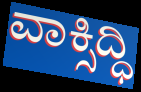
ವಾಕ್ಸಿದ್ಧಿ